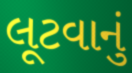
લૂટવાનું